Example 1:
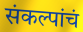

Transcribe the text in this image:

संकल्पांचं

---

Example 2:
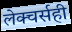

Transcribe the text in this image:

लेक्चर्सही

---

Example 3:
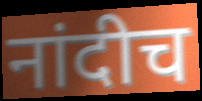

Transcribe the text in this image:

नांदीच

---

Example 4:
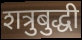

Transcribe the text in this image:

शत्रुबुद्धी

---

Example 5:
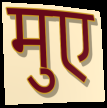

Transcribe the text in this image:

मुए